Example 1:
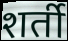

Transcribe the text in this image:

शर्ती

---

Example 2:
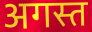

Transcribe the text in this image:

अगस्त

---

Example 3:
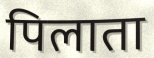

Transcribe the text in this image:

पिलाता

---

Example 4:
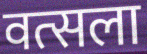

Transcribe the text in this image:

वत्‍सला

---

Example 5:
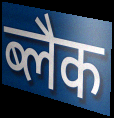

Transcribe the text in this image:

ब्लैक